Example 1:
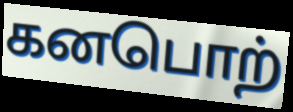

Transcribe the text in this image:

கனபொற்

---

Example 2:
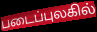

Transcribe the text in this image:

படைப்புலகில்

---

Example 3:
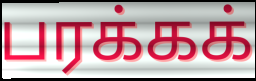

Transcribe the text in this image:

பரக்கக்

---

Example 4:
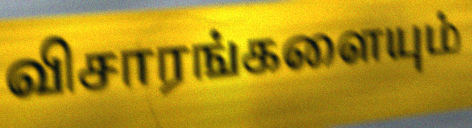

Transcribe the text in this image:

விசாரங்களையும்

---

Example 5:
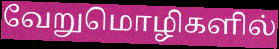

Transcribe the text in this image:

வேறுமொழிகளில்